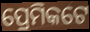
ପ୍ରେମିକଟେ